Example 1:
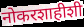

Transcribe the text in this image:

नोकरशाहीशी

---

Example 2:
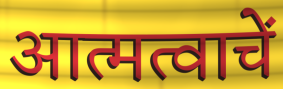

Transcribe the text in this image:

आत्मत्वाचें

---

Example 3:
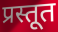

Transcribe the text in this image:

प्रस्तूत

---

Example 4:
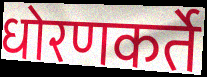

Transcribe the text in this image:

धोरणकर्ते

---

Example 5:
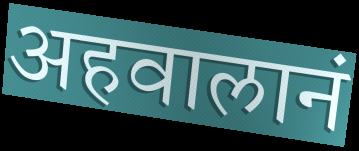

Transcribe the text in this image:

अहवालानं